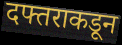
दफ्तराकडून